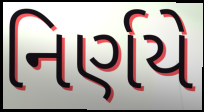
નિર્ણયે